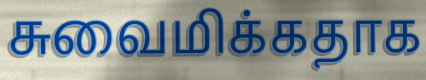
சுவைமிக்கதாக